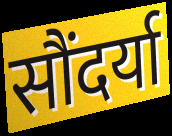
सौंदर्या